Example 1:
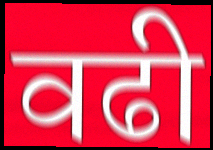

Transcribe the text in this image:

वढी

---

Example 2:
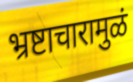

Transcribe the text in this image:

भ्रष्टाचारामुळं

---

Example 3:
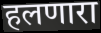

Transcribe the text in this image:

हलणारा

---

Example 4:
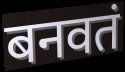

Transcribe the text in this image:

बनवतं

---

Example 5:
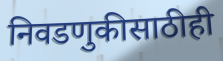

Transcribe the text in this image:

निवडणुकीसाठीही